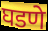
घडणे